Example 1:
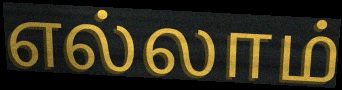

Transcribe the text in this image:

எல்லாம்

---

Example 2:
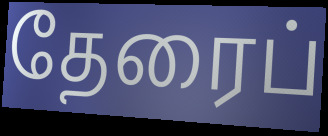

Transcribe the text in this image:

தேரைப்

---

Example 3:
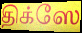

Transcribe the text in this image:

திக்ஸே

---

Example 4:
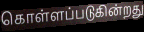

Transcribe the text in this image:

கொள்ளப்படுகின்றது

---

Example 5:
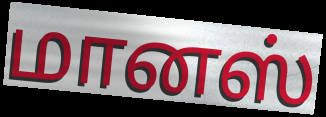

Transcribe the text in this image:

மானஸ்